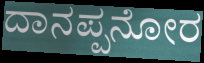
ದಾನಪ್ಪನೋರ